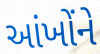
આંખોંને